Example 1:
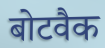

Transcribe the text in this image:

बोटवैक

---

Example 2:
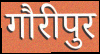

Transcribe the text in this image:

गौरीपुर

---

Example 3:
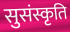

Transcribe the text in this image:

सुसंस्कृति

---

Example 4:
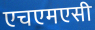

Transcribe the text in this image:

एचएमएसी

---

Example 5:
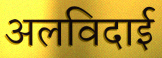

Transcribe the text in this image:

अलविदाई